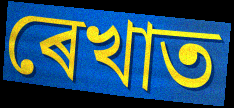
ৰেখাত